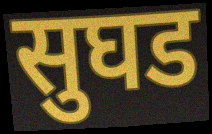
सुघड